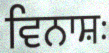
ਵਿਨਾਸ਼ਃ